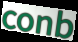
conb